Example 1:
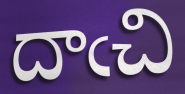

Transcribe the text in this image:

దాఁచి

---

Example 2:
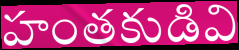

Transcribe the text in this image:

హంతకుడివి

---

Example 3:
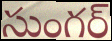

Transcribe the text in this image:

సుంగర్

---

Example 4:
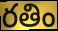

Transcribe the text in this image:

రతిం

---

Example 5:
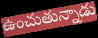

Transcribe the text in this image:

ఉంచుతున్నాడు